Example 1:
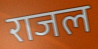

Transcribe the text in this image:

राजल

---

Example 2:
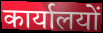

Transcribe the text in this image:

कार्यालयों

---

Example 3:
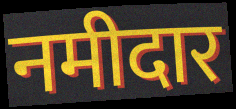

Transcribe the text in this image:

नमीदार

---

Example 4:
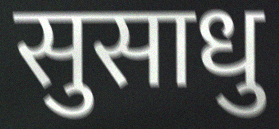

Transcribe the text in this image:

सुसाधु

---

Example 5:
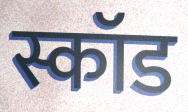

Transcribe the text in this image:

स्कॉड